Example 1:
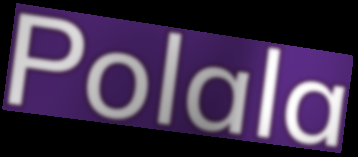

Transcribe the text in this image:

Polala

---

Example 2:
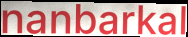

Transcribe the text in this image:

nanbarkal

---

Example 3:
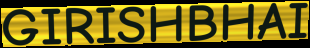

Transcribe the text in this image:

GIRISHBHAI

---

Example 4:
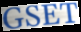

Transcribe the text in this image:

GSET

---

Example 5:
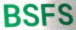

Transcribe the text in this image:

BSFS